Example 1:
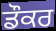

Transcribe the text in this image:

ਡੌਕਰ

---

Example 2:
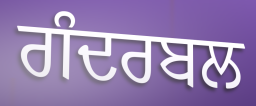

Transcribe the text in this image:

ਗੰਦਰਬਲ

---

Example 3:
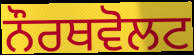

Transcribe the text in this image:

ਨੌਰਥਵੋਲਟ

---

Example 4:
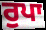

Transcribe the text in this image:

ਰੁਪਾ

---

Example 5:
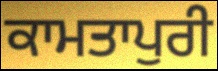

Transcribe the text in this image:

ਕਾਮਤਾਪੁਰੀ